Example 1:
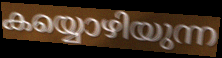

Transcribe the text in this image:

കയ്യൊഴിയുന്ന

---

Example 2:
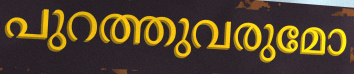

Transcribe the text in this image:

പുറത്തുവരുമോ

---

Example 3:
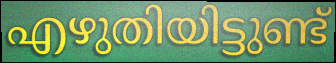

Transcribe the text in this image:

എഴുതിയിട്ടുണ്ട്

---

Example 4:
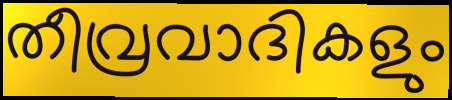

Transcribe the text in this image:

തീവ്രവാദികളും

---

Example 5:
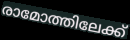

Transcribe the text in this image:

രാമോത്തിലേക്ക്